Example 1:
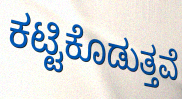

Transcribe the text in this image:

ಕಟ್ಟಿಕೊಡುತ್ತವೆ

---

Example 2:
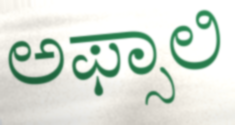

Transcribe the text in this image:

ಅಫ್ಸಾಲಿ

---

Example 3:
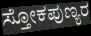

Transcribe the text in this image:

ಸ್ತೋಕಪುಣ್ಯರ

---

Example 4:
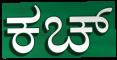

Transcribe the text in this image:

ಕಚ್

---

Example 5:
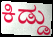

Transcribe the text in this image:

ಕಿಡ್ಡು